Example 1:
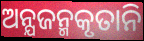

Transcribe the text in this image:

ଅନ୍ଯଜନ୍ମକୃତାନି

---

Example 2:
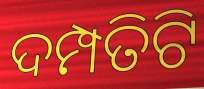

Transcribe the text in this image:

ଦମ୍ପତିଟି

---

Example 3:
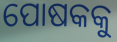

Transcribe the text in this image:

ପୋଷକକୁ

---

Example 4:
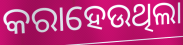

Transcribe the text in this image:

କରାହେଉଥିଲା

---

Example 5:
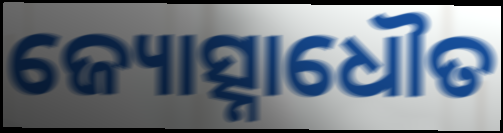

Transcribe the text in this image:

ଜ୍ୟୋତ୍ସ୍ନାଧୌତ